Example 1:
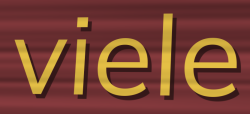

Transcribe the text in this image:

viele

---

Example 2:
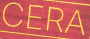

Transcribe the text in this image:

CERA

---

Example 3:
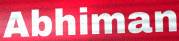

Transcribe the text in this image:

Abhiman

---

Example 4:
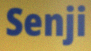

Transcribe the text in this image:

Senji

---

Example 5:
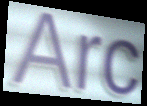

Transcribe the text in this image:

Arc